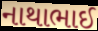
નાથાભાઈ